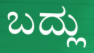
ಬದ್ಲು